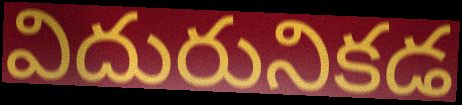
విదురునికడ